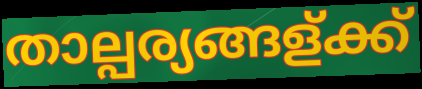
താല്പര്യങ്ങള്ക്ക്